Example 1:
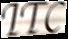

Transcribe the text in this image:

ITC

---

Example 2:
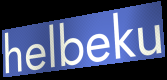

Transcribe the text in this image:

helbeku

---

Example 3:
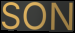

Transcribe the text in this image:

SON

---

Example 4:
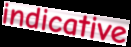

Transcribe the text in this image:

indicative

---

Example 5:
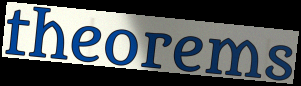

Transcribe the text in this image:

theorems